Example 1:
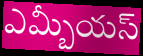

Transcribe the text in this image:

ఎమ్బీయస్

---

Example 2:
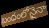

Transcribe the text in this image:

బంధంలోనైనా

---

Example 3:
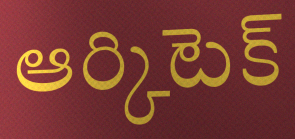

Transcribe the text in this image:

ఆర్కిటెక్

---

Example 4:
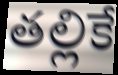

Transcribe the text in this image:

తల్లికే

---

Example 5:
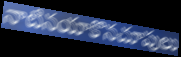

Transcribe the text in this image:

నాటినయాకొనచూపులు